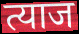
त्याज